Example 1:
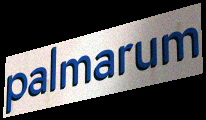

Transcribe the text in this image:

palmarum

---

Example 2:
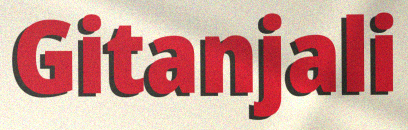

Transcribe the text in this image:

Gitanjali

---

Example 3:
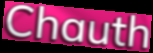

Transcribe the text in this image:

Chauth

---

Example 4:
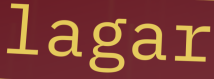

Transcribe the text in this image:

lagar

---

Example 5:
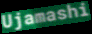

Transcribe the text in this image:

Ujamashi